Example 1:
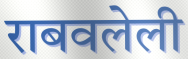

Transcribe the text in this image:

राबवलेली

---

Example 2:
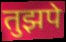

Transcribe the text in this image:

तुझपे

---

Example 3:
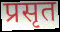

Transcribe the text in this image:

प्रसृत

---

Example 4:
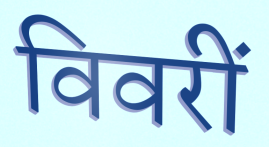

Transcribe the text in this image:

विवरीं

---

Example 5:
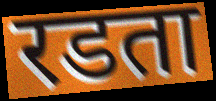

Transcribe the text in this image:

रडता